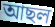
আছল